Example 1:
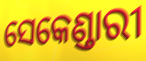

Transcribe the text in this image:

ସେକେଣ୍ଡାରୀ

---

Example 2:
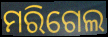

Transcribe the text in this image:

ମରିଗେଲ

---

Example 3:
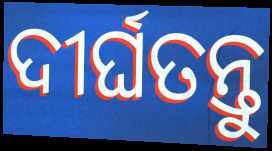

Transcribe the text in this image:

ଦୀର୍ଘତନ୍ତୁ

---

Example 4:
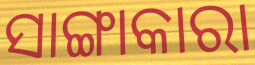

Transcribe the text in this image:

ସାଙ୍ଗାକାରା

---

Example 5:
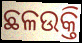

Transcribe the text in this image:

ଛଳଉକ୍ତି